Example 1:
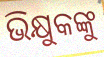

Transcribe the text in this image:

ଭିକ୍ଷୁକଙ୍କୁ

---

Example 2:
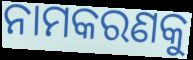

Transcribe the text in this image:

ନାମକରଣକୁ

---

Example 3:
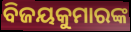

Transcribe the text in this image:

ବିଜୟକୁମାରଙ୍କ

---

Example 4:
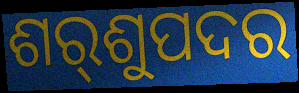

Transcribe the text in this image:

ଶର୍‌ଶୁପଦର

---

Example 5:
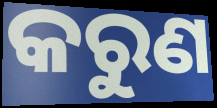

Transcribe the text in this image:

କରୁଣ